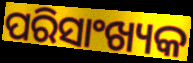
ପରିସାଂଖ୍ୟକ